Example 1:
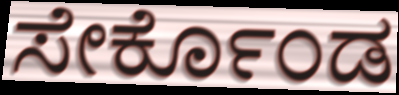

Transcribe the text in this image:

ಸೇರ್ಕೊಂಡ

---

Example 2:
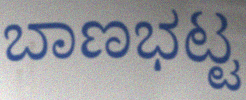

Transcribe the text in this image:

ಬಾಣಭಟ್ಟ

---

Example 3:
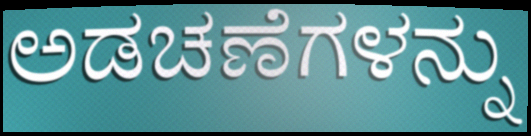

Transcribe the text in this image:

ಅಡಚಣೆಗಳನ್ನು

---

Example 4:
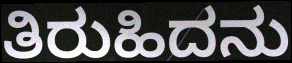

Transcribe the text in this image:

ತಿರುಹಿದನು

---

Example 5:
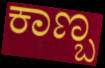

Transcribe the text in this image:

ಕಾಣ್ಬ